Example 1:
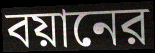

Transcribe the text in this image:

বয়ানের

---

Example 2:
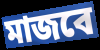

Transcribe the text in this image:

মাজবে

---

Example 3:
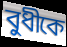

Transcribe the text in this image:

বুধীকে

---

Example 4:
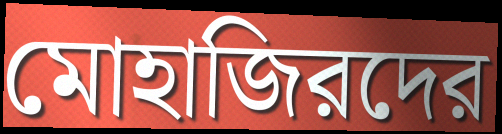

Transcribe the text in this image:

মোহাজিরদের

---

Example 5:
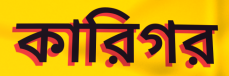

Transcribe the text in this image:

কারিগর